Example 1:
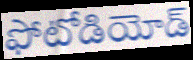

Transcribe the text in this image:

ఫోటోడియోడ్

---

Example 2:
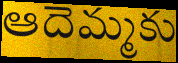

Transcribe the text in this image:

ఆదెమ్మకు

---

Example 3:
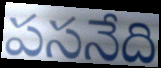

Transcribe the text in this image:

పసనేది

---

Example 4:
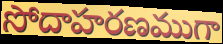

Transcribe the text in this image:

సోదాహరణముగా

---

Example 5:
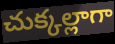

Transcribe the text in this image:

చుక్కల్లాగా